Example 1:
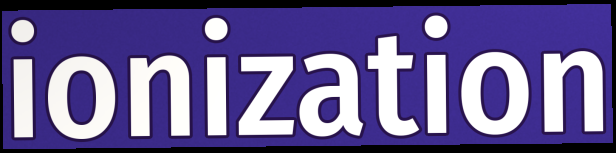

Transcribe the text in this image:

ionization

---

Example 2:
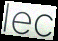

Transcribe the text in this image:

lec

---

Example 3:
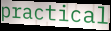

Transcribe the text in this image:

practical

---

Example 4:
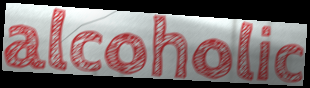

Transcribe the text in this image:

alcoholic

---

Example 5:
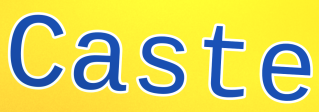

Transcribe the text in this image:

Caste